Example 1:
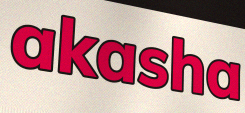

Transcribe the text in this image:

akasha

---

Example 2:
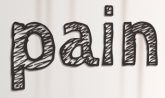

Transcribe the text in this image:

pain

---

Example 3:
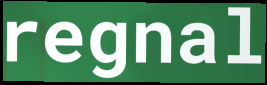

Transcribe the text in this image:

regnal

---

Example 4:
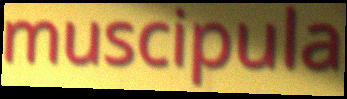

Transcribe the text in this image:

muscipula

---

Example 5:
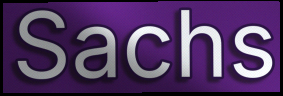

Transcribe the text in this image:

Sachs